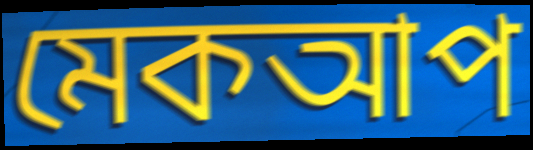
মেকআপ